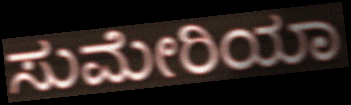
ಸುಮೇರಿಯಾ